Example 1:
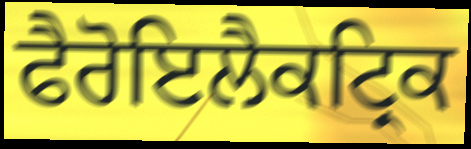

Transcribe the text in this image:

ਫੈਰੋਇਲੈਕਟ੍ਰਿਕ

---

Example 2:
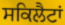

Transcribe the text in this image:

ਸਕਿਲੈਟਾਂ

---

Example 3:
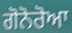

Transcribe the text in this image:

ਗੋਨੋਰੋਆ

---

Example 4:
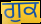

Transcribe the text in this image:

ਗੁਕ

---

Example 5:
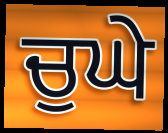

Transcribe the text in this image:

ਚੁਘੇ